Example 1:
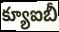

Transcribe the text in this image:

క్యూఐబీ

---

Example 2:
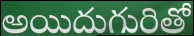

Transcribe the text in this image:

అయిదుగురితో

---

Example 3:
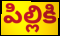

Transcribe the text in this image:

పిల్లికి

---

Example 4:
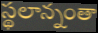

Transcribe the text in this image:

స్థలాన్నంతా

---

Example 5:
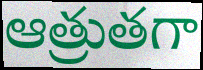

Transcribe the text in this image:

ఆత్రుతగా